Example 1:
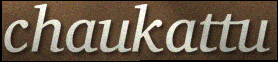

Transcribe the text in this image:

chaukattu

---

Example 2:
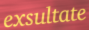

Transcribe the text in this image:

exsultate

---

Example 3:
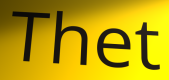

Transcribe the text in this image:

Thet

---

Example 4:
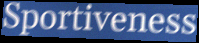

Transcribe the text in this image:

Sportiveness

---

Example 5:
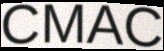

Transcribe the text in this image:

CMAC